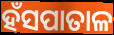
ହଁସପାତାଳ